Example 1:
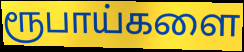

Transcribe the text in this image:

ரூபாய்களை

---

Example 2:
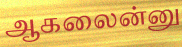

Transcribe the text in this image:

ஆகலைன்னு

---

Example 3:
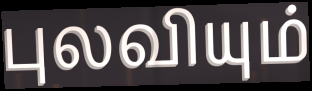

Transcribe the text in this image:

புலவியும்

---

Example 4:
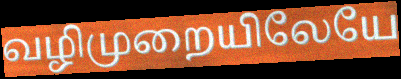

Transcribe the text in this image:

வழிமுறையிலேயே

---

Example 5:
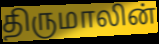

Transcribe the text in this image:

திருமாலின்